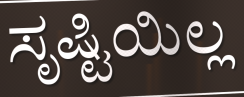
ಸೃಷ್ಟಿಯಿಲ್ಲ